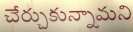
చేర్చుకున్నామని